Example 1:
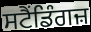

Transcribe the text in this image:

ਸਟੈਂਡਿੰਗਜ਼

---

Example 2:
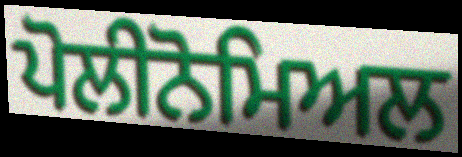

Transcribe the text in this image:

ਪੋਲੀਨੋਮਿਅਲ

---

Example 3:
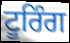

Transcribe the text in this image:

ਟੂਰਿੰਗ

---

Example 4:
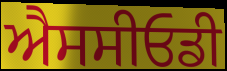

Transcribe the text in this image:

ਐਸਸੀਓਡੀ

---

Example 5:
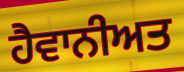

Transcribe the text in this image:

ਹੈਵਾਨੀਅਤ